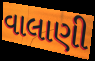
વાલાણી